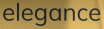
elegance